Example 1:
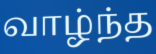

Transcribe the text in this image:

வாழ்ந்த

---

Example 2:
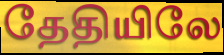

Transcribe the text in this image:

தேதியிலே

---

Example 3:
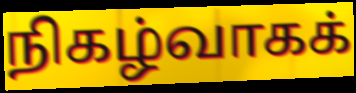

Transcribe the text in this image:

நிகழ்வாகக்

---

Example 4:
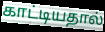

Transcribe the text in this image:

காட்டியதால்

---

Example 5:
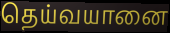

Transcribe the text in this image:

தெய்வயானை